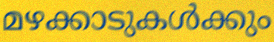
മഴക്കാടുകൾക്കും